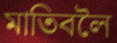
মাতিবলৈ